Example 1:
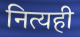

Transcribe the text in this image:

नित्यही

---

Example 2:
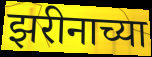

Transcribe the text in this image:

झरीनाच्या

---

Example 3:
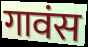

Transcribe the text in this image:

गावंस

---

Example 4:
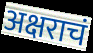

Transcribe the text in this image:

अक्षराचं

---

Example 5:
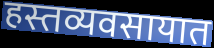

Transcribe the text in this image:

हस्तव्यवसायात